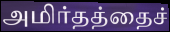
அமிர்தத்தைச்